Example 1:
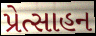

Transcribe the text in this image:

પ્રેત્સાહન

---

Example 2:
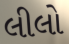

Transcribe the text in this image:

લીલો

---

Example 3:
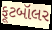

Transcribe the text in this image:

ફૂટબૉલર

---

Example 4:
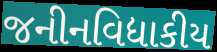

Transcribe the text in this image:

જનીનવિદ્યાકીય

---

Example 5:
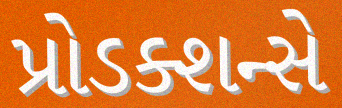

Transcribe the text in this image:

પ્રોડક્શન્સે